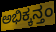
ಅಭಿಕ್ಕನ್ತಂ